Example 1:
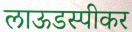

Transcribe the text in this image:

लाऊडस्पीकर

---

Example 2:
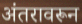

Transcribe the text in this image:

अंतरावरून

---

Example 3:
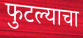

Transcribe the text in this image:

फुटल्याचा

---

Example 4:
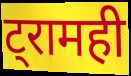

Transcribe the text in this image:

ट्रामही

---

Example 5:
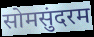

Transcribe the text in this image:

सोमसुंदरम